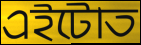
এইটোত